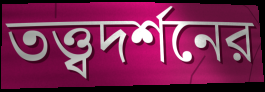
তত্ত্বদর্শনের